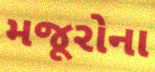
મજૂરોના